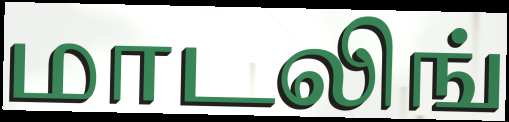
மாடலிங்